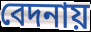
বেদনায়